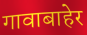
गावाबाहेर